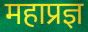
महाप्रज्ञ